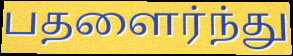
பதளைர்ந்து